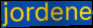
jordene